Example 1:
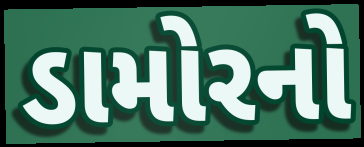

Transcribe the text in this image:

ડામોરનો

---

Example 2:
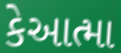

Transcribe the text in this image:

કેઆત્મા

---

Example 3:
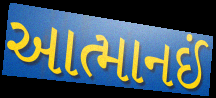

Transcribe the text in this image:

આત્માનઈં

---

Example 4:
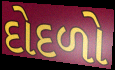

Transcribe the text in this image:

દોદળો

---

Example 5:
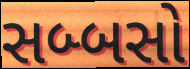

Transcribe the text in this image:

સબ્બસો